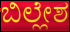
ಬಿಲ್ಲೇಶ